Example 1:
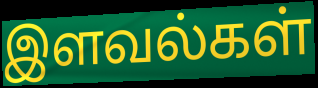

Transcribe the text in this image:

இளவல்கள்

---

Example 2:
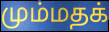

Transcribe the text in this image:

மும்மதக்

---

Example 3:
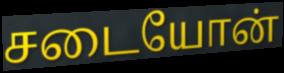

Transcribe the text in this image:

சடையோன்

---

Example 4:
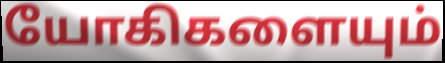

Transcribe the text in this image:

யோகிகளையும்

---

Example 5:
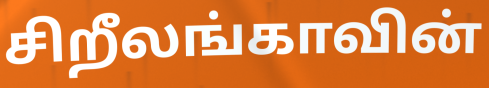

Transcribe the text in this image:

சிறீலங்காவின்